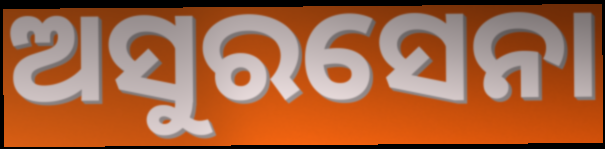
ଅସୁରସେନା